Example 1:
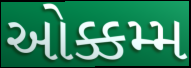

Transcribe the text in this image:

ઓક્કમ્મ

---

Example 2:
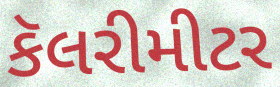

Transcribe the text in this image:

કૅલરીમીટર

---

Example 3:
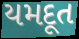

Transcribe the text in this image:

યમદૂત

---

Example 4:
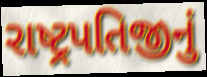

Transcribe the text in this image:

રાષ્ટ્રપતિજીનું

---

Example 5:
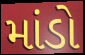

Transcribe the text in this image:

માંડો